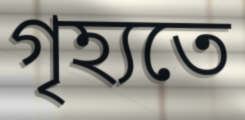
গৃহ্যতে